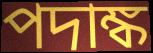
পদাঙ্ক